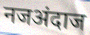
नजअंदाज